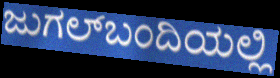
ಜುಗಲ್‌ಬಂದಿಯಲ್ಲಿ